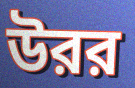
উরর